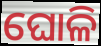
ଘୋଳି